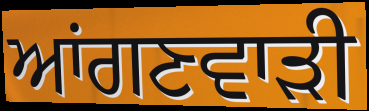
ਆਂਗਣਵਾੜੀ